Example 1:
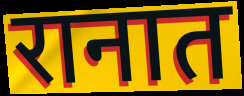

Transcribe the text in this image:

रानात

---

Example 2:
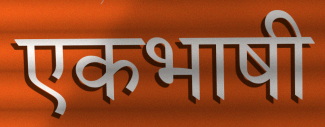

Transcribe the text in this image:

एकभाषी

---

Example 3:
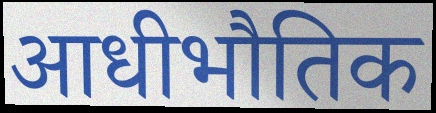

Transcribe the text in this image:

आधीभौतिक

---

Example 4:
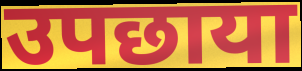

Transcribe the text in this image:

उपछाया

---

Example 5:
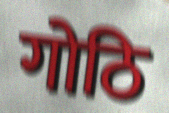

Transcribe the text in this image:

गोठि